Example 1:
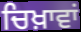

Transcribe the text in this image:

ਚਿਖ਼ਾਵਾਂ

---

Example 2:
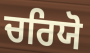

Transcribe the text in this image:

ਚਰਿਯੋ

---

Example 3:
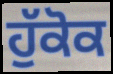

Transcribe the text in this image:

ਹੁੱਕੋਕ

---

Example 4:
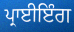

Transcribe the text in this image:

ਪ੍ਰਾਈਇੰਗ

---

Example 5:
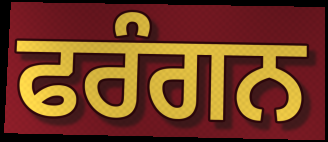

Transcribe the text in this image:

ਫਰੰਗਨ